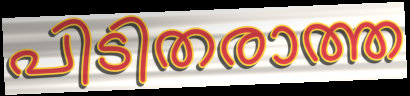
പിടിതരാത്ത